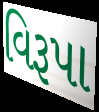
વિરૂપા